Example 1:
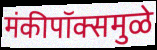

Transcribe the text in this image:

मंकीपॉक्समुळे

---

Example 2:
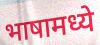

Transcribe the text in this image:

भाषामध्ये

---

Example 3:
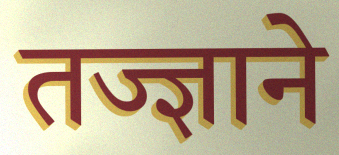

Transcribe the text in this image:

तज्ज्ञाने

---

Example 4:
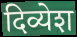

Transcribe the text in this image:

दिव्येश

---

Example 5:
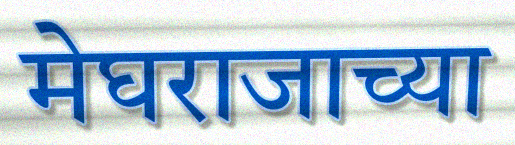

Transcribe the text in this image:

मेघराजाच्या